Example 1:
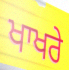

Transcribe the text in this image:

ਖਾਖਰੇ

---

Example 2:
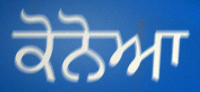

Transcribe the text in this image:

ਕੋਨੋਆ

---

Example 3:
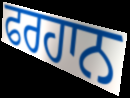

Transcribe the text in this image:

ਫਰਹਾਨ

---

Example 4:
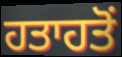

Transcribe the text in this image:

ਹਤਾਹਤੋਂ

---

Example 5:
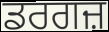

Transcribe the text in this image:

ਡਰਗਜ਼